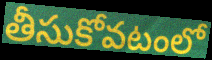
తీసుకోవటంలో